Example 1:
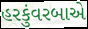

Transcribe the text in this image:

હરકુંવરબાએ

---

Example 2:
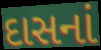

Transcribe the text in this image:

દાસનાં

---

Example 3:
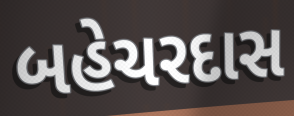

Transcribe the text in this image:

બહેચરદાસ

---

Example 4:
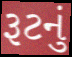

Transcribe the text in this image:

રૂટનું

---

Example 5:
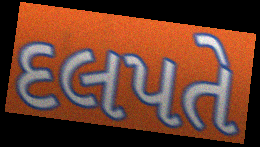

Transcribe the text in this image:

દલપતે